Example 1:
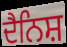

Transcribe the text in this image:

ਦੈਨਿਸ਼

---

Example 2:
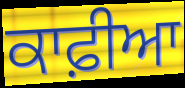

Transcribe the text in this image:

ਕਾਫ਼ੀਆ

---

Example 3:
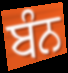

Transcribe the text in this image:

ਬੰਨ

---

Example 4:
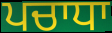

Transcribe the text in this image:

ਪਚਾਧਾ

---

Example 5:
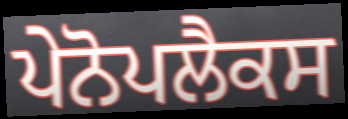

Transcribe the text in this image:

ਪੇਨੋਪਲੈਕਸ